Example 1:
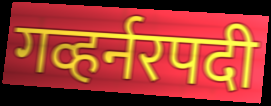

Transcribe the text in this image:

गव्हर्नरपदी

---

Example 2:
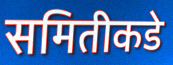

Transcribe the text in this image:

समितीकडे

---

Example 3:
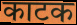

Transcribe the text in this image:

काटक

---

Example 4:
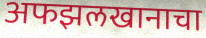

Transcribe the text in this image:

अफझलखानाचा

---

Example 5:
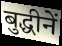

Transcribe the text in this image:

बुद्धीनें